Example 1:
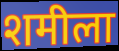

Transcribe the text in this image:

शमीला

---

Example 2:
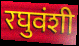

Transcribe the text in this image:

रघुवंशी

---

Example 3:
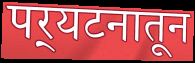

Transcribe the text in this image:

पर्यटनातून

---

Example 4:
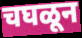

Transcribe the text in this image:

चघळून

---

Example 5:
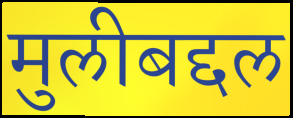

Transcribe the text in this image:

मुलीबद्दल